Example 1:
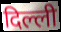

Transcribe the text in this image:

दिल्‍ली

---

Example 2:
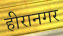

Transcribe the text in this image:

हीरानगर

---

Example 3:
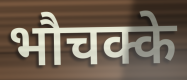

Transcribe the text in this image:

भौचक्के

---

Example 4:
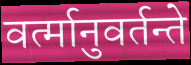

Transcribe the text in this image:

वर्त्मानुवर्तन्ते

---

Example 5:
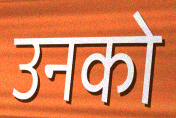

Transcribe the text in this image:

उनको